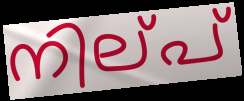
നില്പ്